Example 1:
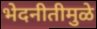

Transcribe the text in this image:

भेदनीतीमुळे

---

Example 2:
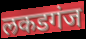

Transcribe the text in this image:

लकडगंज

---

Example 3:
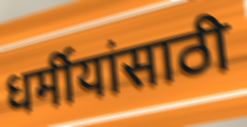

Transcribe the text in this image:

धर्मीयांसाठी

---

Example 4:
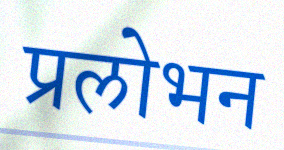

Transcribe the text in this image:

प्रलोभन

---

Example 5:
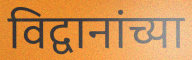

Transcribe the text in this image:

विद्वानांच्या